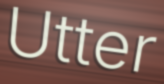
Utter